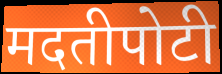
मदतीपोटी